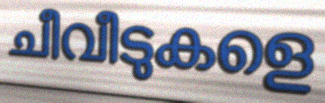
ചീവീടുകളെ